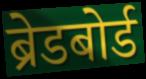
ब्रेडबोर्ड